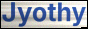
Jyothy